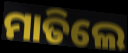
ମାତିଲେ